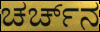
ಚರ್ಚ್‌ನ